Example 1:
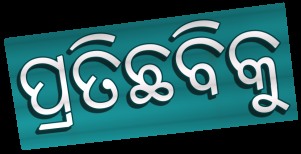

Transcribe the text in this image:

ପ୍ରତିଛବିକୁ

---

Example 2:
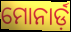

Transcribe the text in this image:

ମୋନାର୍ଡ଼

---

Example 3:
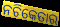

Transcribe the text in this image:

ନଚିକେତାର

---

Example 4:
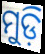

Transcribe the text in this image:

ମୁଡ଼ି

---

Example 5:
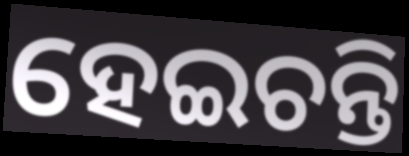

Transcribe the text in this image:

ହେଇଚନ୍ତି